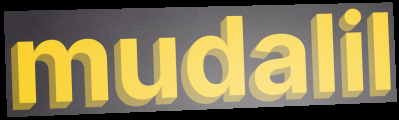
mudalil